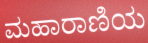
ಮಹಾರಾಣಿಯ